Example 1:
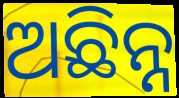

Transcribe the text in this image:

ଅଛିନ୍ନ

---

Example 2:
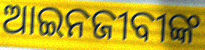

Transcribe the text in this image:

ଆଇନଜୀବୀଙ୍କ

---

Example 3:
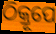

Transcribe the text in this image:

ଠିକ୍ରୂପେ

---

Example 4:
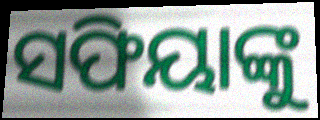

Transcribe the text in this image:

ସଫିୟାଙ୍କୁ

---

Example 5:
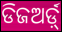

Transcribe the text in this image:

ଡିଜଅର୍ଡ଼୍